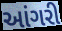
આંગરી